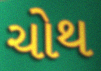
ચોથ